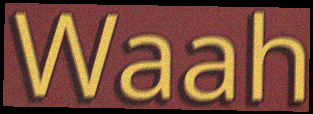
Waah